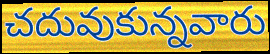
చదువుకున్నవారు